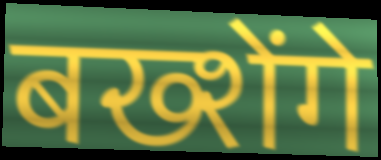
बख्शेंगे